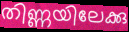
തിണ്ണയിലേക്കു